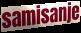
samisanje